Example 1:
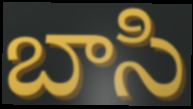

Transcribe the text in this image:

బాసి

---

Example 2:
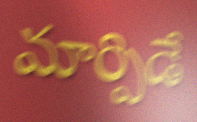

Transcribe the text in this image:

మార్పిడే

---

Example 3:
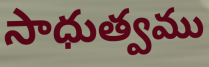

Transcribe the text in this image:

సాధుత్వము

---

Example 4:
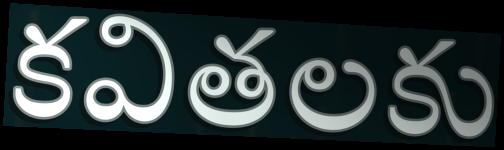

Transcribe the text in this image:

కవితలకు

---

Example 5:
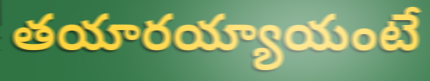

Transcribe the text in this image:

తయారయ్యాయంటే